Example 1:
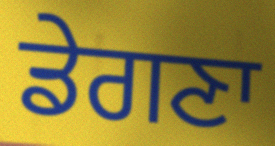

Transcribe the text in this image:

ਡੇਗਣਾ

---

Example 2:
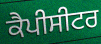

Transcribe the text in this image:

ਕੈਪੀਸੀਟਰ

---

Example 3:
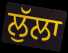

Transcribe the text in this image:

ਲੁੱਲਾ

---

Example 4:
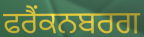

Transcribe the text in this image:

ਫਰੈਂਕਨਬਰਗ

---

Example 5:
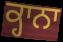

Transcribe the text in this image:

ਕ੍ਹਾਨਾ